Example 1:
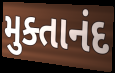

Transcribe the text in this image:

મુક્તાનંદ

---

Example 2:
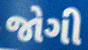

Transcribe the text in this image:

જોગી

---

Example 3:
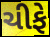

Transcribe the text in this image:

ચીફે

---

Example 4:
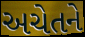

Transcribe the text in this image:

અચેતને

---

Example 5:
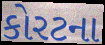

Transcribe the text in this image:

કોરટના